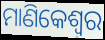
ମାଣିକେଶ୍ଵର